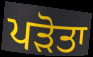
ਪੜੋਤਾ